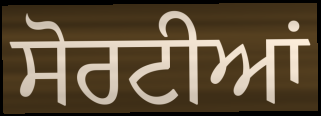
ਸੋਰਟੀਆਂ